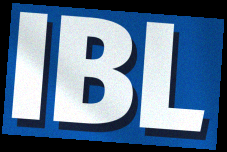
IBL